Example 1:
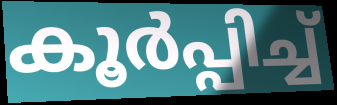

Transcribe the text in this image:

കൂർപ്പിച്ച്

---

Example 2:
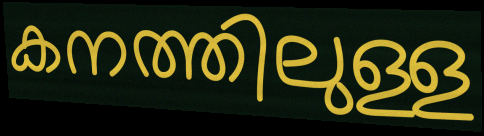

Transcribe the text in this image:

കനത്തിലുള്ള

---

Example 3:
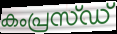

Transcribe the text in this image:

കംപ്രസ്ഡ്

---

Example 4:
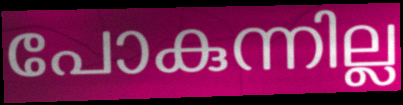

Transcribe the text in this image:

പോകുന്നില്ല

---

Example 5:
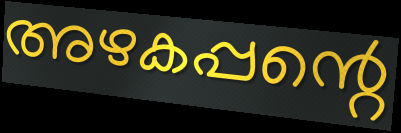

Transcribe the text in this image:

അഴകപ്പന്റെ